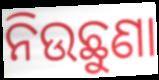
ନିଉଛୁଣା